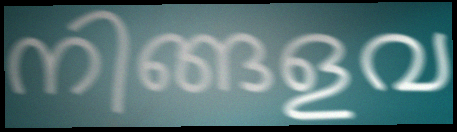
നിങ്ങളവ